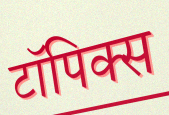
टॉपिक्स